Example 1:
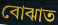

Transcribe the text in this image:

বোঝাত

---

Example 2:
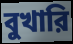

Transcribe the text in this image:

বুখারি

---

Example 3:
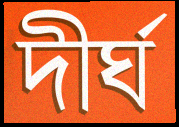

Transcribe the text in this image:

দীর্ঘ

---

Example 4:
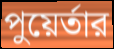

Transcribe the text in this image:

পুয়ের্তার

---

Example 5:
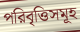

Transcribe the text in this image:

পরিবৃত্তিসমূহ